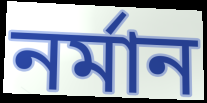
নৰ্মান